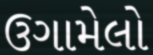
ઉગામેલો